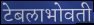
टेबलाभोवती